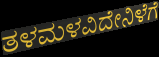
ತಳಮಳವಿದೇನಿಳೆಗೆ